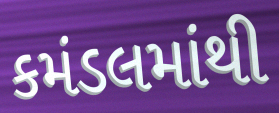
કમંડલમાંથી